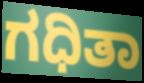
ಗಧಿತಾ